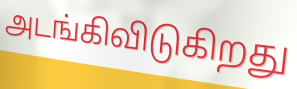
அடங்கிவிடுகிறது